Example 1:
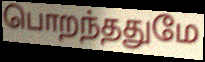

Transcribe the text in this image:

பொறந்ததுமே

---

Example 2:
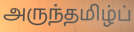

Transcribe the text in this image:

அருந்தமிழ்ப்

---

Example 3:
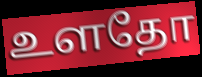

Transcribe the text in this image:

உளதோ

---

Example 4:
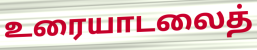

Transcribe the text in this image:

உரையாடலைத்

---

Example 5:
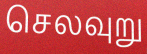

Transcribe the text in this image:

செலவுறு